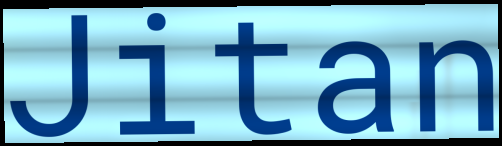
Jitan